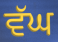
ਵੱਘ